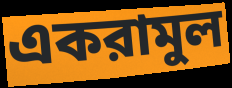
একরামুল